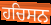
ਹਚਿਸਨ